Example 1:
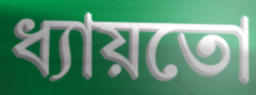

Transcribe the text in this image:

ধ্যায়তো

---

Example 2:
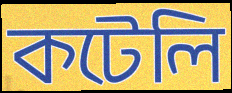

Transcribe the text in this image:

কটেলি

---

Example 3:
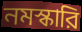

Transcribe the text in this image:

নমস্কারি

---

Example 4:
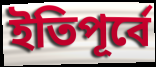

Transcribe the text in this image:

ইতিপূর্বে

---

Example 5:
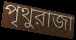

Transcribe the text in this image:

পৃথুরাজা